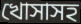
খোসাসহ